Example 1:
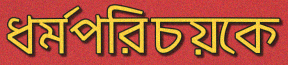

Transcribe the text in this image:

ধর্মপরিচয়কে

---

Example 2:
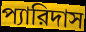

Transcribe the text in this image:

প্যারিদাস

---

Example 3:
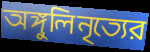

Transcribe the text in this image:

অঙ্গুলিনৃত্যের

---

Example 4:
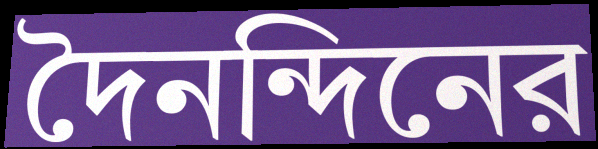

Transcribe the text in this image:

দৈনন্দিনের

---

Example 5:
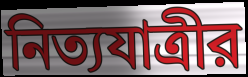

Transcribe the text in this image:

নিত্যযাত্রীর